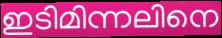
ഇടിമിന്നലിനെ